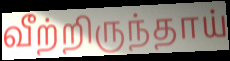
வீற்றிருந்தாய்